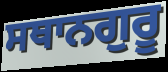
ਸਥਾਨਗੁਰੂ